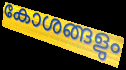
കോശങ്ങളും